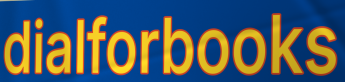
dialforbooks